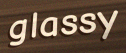
glassy